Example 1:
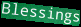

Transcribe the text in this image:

Blessings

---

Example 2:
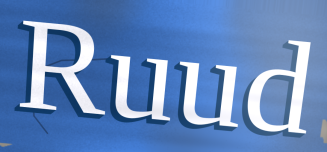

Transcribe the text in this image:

Ruud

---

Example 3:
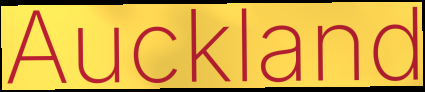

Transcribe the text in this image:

Auckland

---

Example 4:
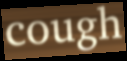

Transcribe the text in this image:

cough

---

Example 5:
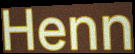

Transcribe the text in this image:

Henn